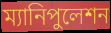
ম্যানিপুলেশন